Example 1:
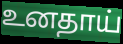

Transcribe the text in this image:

உனதாய்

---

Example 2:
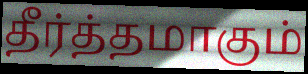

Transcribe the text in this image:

தீர்த்தமாகும்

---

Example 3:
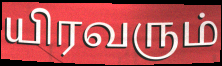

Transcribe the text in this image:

யிரவரும்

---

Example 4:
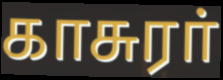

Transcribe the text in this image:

காசுரர்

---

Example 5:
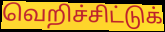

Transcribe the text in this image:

வெறிச்சிட்டுக்